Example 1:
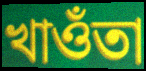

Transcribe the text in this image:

খাওঁতা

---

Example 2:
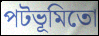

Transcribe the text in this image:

পটভূমিতো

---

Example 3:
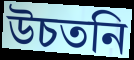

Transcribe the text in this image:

উচতনি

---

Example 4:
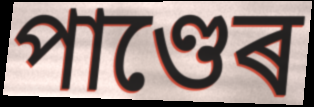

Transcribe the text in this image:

পাণ্ডেৰ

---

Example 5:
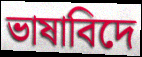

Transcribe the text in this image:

ভাষাবিদে